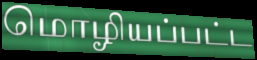
மொழியப்பட்ட